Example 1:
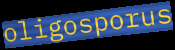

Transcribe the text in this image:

oligosporus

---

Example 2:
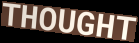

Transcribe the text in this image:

THOUGHT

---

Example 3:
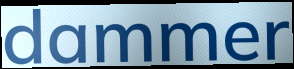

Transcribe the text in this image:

dammer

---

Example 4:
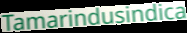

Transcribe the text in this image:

Tamarindusindica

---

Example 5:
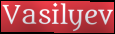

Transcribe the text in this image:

Vasilyev